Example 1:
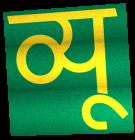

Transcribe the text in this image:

व्यू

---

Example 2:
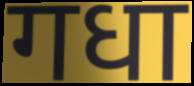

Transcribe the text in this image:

गधा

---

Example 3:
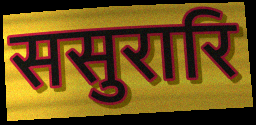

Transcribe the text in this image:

ससुरारि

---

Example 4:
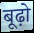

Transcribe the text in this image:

बूढ़ो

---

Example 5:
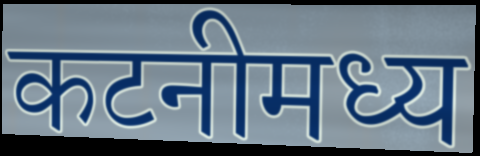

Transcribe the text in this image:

कटनीमध्य